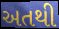
અતથી